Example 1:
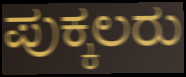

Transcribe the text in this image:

ಪುಕ್ಕಲರು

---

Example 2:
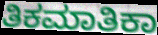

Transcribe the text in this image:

ತಿಕಮಾತಿಕಾ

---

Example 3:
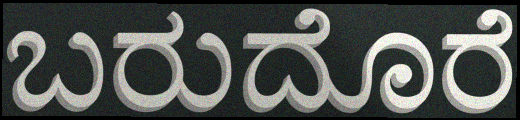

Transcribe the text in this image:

ಬರುದೊರೆ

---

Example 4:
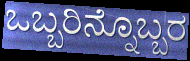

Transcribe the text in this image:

ಒಬ್ಬರಿನ್ನೊಬ್ಬರ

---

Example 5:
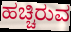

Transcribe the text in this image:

ಹಚ್ಚಿರುವ